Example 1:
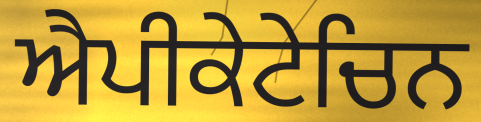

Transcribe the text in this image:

ਐਪੀਕੇਟੇਚਿਨ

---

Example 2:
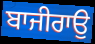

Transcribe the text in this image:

ਬਾਜੀਰਾਉ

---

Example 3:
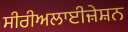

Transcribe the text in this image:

ਸੀਰੀਅਲਾਈਜ਼ੇਸ਼ਨ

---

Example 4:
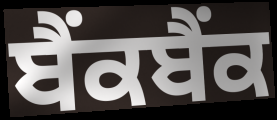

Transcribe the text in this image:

ਬੈਂਕਬੈਂਕ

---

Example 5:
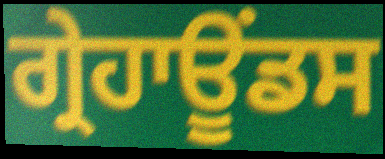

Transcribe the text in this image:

ਗ੍ਰੇਹਾਊਂਡਸ